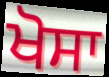
ਖੋਸਾ